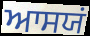
ਆਸਯਂ